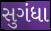
સુગંધા